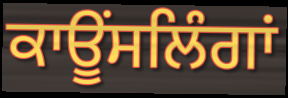
ਕਾਊਂਸਲਿੰਗਾਂ